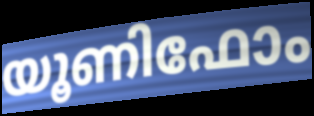
യൂണിഫോം